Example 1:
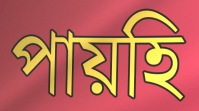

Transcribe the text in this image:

পায়হি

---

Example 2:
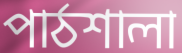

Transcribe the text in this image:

পাঠশালা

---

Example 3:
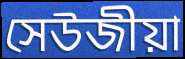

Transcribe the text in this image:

সেউজীয়া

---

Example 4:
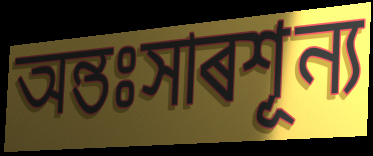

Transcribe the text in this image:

অন্তঃসাৰশূন্য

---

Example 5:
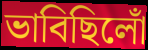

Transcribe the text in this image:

ভাবিছিলোঁ